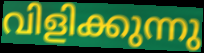
വിളിക്കുന്നു